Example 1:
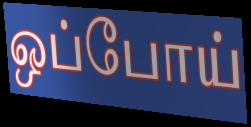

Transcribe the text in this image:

ஒப்போய்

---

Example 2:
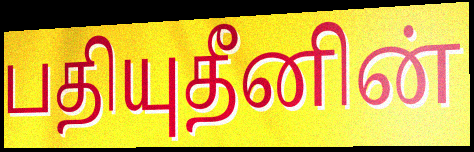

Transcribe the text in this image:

பதியுதீனின்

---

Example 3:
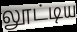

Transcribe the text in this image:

லூட்டிய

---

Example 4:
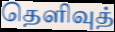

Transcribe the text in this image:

தெளிவுத்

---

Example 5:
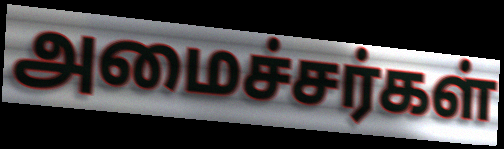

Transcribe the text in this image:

அமைச்சர்கள்